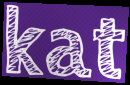
kat